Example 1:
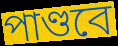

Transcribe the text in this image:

পাণ্ডবে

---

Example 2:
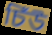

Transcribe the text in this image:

চিঁউ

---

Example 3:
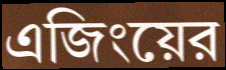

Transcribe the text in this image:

এজিংয়ের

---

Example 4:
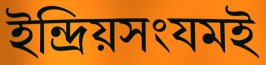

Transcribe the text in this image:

ইন্দ্রিয়সংযমই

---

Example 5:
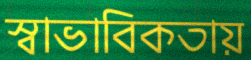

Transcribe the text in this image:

স্বাভাবিকতায়